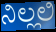
ನಿಲ್ಲಲಿ